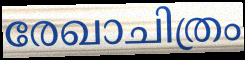
രേഖാചിത്രം